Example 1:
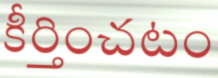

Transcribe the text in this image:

కీర్తించటం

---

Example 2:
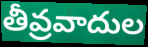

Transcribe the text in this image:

తీవ్రవాదుల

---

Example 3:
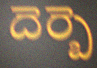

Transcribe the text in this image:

దెర్బె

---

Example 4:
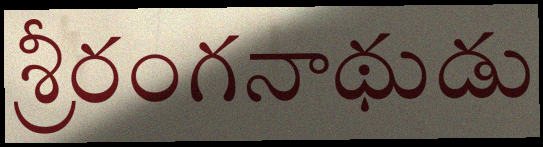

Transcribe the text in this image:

శ్రీరంగనాథుడు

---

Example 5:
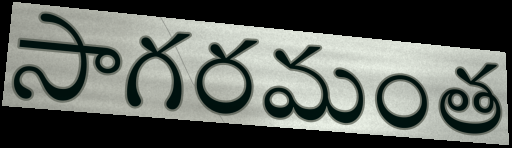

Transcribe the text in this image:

సాగరమంత